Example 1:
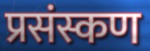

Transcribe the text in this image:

प्रसंस्कण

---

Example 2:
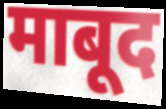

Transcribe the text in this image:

माबूद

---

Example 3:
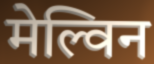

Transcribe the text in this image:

मेल्विन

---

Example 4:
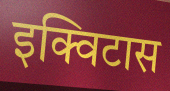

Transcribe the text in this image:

इक्विटास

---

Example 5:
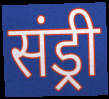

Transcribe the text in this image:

संड्री